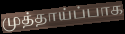
முத்தாய்ப்பாக